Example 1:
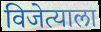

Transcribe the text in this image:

विजेत्याला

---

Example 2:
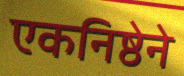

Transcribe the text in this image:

एकनिष्ठेने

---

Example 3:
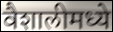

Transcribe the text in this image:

वैशालीमध्ये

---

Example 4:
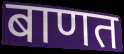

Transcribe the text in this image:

बाणत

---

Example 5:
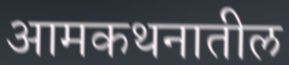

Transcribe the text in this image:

आमकथनातील